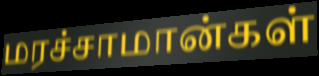
மரச்சாமான்கள்